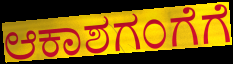
ಆಕಾಶಗಂಗೆಗೆ